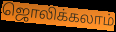
ஜொலிக்கலாம்